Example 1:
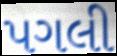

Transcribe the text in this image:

પગલી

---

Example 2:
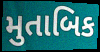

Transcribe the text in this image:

મુતાબિક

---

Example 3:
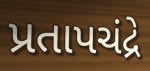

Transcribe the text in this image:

પ્રતાપચંદ્રે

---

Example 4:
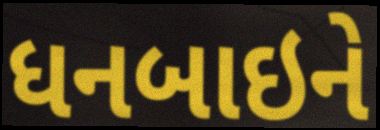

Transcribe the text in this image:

ધનબાઇને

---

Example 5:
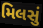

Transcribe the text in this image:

મિલસું